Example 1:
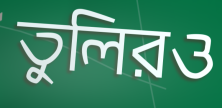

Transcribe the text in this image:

তুলিরও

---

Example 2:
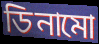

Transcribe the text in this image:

ডিনামো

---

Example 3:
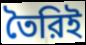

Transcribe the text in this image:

তৈরিই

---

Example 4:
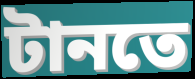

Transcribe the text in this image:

টানতে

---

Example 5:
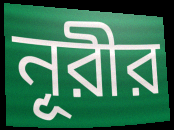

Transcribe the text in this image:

নূরীর